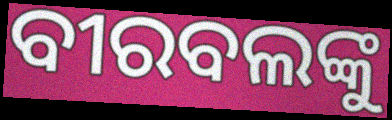
ବୀରବଲଙ୍କୁ